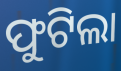
ଫୁଟିଲା